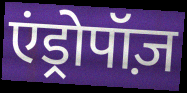
एंड्रोपॉज़